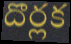
దొర్లక